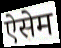
ऐसेम